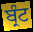
ਬ੍ਰੰਟ